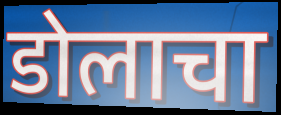
डोलाचा